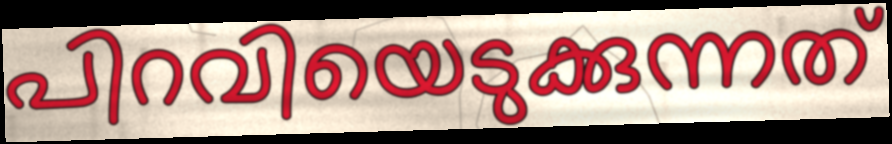
പിറവിയെടുക്കുന്നത്